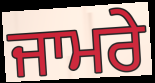
ਜਾਮਰੇ